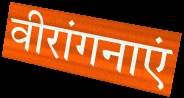
वीरांगनाएं